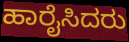
ಹಾರೈಸಿದರು